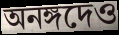
অনঙ্গদেও